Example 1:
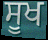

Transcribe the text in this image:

ਸੂਖ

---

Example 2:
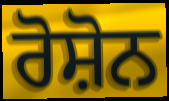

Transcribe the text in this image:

ਰੋਸ਼ੋਨ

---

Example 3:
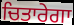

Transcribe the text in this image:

ਚਿਤਾਰੇਗਾ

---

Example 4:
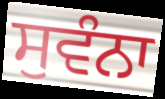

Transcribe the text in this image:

ਸੁਵੰਨਾ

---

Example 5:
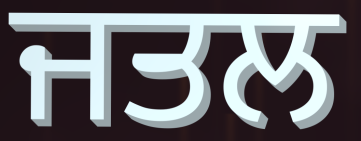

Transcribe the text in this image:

ਜਤਲ